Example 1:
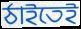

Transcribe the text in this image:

ঠাইতেই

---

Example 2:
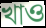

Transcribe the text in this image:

খাও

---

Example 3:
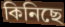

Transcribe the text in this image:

কিনিছে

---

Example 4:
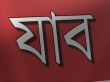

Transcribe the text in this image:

যাব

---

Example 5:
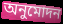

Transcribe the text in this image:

অনুমোদন